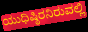
ಯುಧಿಷ್ಠಿರನಿರುವಲ್ಲಿ